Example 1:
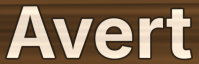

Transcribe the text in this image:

Avert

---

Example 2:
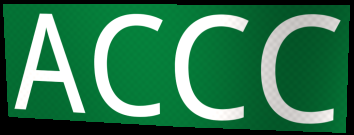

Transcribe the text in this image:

ACCC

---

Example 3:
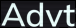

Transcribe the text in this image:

Advt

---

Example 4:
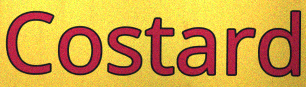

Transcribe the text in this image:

Costard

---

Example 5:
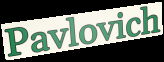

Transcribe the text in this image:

Pavlovich